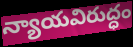
న్యాయవిరుద్ధం